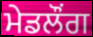
ਮੇਡਲੌਂਗ